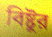
বিষ্টুর